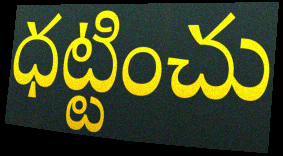
ధట్టించు